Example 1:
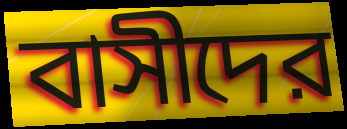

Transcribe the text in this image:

বাসীদের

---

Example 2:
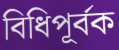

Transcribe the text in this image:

বিধিপূর্বক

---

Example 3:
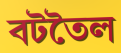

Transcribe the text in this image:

বটতৈল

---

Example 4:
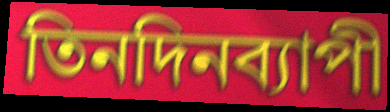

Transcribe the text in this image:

তিনদিনব্যাপী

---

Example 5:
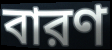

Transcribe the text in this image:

বারণ